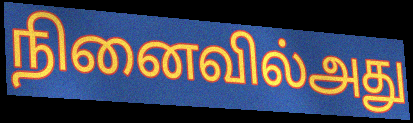
நினைவில்அது